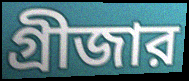
গ্রীজার